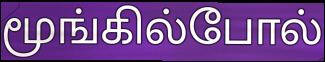
மூங்கில்போல்